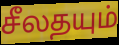
சீலதயும்